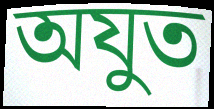
অযুত